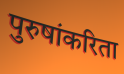
पुरुषांकरिता